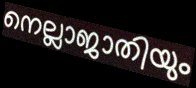
നെല്ലാജാതിയും